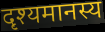
दृश्यमानस्य